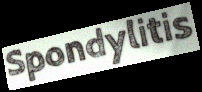
Spondylitis